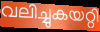
വലിച്ചുകയറ്റി